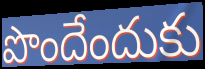
పొందేందుకు